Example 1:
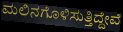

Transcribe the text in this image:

ಮಲಿನಗೊಳಿಸುತ್ತಿದ್ದೇವೆ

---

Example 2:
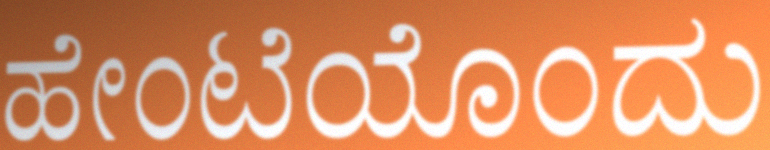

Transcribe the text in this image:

ಹೇಂಟೆಯೊಂದು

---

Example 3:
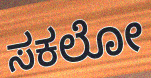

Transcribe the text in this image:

ಸಕಲೋ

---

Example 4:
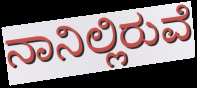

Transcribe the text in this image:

ನಾನಿಲ್ಲಿರುವೆ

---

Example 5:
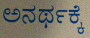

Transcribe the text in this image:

ಅನರ್ಥಕ್ಕೆ